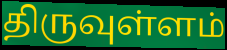
திருவுள்ளம்